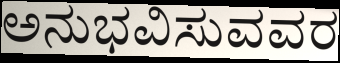
ಅನುಭವಿಸುವವರ